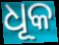
ଧୂକ